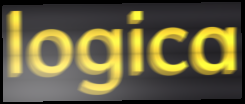
logica